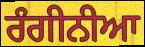
ਰੰਗੀਨੀਆ